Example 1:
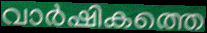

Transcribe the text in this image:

വാർഷികത്തെ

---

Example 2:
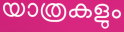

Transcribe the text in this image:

യാത്രകളും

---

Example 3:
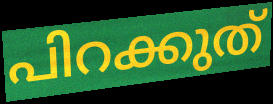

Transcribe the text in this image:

പിറക്കുത്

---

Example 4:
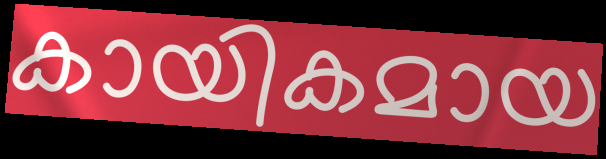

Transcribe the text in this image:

കായികമായ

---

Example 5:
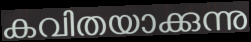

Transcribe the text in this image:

കവിതയാക്കുന്നു